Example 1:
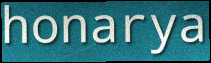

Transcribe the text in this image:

honarya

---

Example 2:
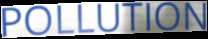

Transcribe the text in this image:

POLLUTION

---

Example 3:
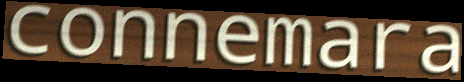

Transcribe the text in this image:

connemara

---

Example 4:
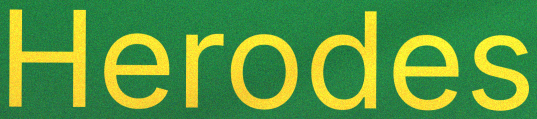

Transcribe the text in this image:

Herodes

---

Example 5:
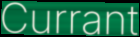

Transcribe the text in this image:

Currant